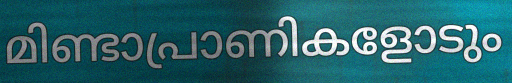
മിണ്ടാപ്രാണികളോടും